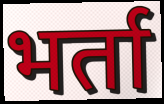
भर्ता